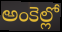
అంకెల్లో